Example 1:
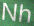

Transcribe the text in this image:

Nh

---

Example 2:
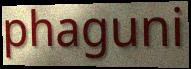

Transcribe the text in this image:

phaguni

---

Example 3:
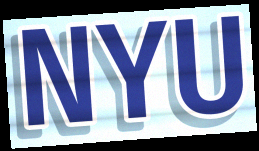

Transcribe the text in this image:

NYU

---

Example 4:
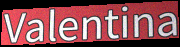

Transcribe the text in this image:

Valentina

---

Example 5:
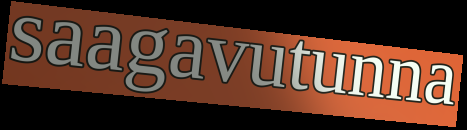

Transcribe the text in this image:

saagavutunna